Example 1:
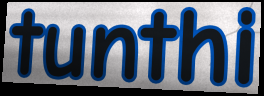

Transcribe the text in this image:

tunthi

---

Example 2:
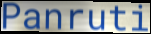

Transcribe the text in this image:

Panruti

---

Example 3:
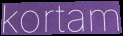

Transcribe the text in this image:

kortam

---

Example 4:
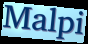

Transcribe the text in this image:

Malpi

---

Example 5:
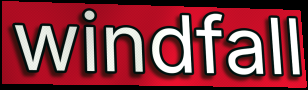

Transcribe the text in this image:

windfall